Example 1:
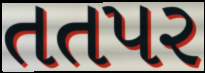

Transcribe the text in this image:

તતપર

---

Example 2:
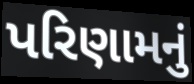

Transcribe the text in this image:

પરિણામનું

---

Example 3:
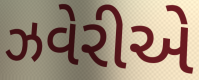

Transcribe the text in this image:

ઝવેરીએ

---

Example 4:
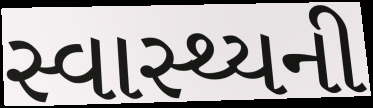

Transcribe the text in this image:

સ્વાસ્થ્યની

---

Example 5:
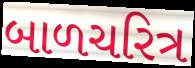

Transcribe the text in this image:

બાળચરિત્ર